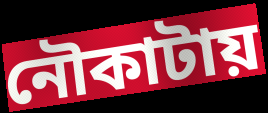
নৌকাটায়